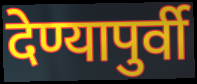
देण्यापुर्वी